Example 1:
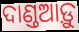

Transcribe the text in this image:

ଦାଣ୍ଡଆଡ଼ୁ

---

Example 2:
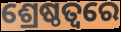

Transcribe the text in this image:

ଶ୍ରେଷ୍ଠତ୍ୱରେ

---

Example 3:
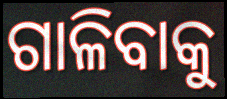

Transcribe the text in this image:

ଗାଳିବାକୁ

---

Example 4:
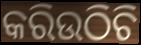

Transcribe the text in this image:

କରିଉଠିଚି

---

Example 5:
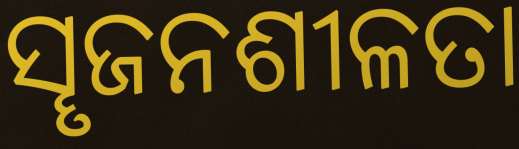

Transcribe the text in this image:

ସୄଜନଶୀଳତା